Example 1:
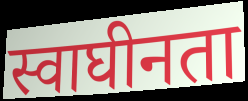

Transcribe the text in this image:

स्वाघीनता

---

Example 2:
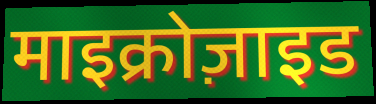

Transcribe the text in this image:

माइक्रोज़ाइड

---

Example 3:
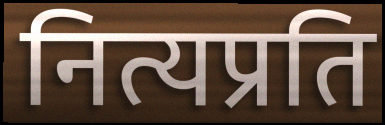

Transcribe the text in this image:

नित्यप्रति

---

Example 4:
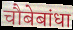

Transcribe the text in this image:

चौबेबांधा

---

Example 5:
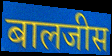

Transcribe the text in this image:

बालजीस